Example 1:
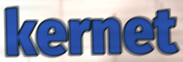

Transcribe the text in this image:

kernet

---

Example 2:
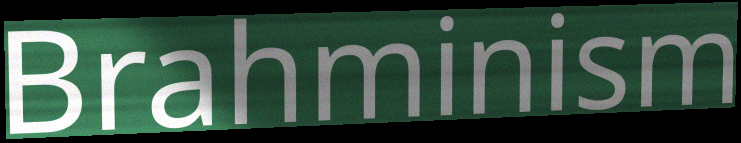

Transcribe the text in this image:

Brahminism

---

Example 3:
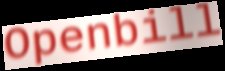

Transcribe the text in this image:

Openbill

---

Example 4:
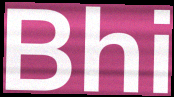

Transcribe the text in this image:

Bhi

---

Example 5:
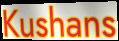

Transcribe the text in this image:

Kushans